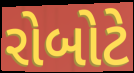
રોબોટે